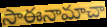
సాఈనామాచా